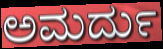
ಅಮರ್ದು